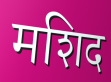
मशिद